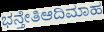
ಭನ್ತೇತಿಆದಿಮಾಹ